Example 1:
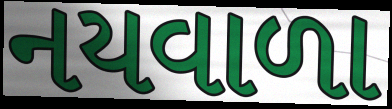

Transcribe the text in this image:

નયવાળા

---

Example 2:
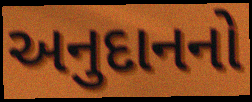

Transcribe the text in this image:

અનુદાનનો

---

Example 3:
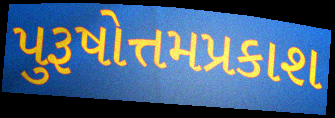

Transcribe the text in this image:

પુરૂષોત્તમપ્રકાશ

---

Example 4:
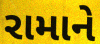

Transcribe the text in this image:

રામાને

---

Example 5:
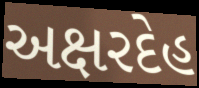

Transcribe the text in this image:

અક્ષરદેહ